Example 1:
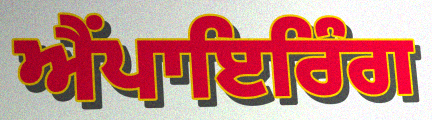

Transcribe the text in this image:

ਐਂਪਾਇਰਿੰਗ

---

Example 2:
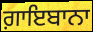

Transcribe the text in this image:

ਗ਼ਾਇਬਾਨਾ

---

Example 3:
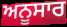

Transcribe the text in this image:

ਅਨੂਸਾਰ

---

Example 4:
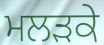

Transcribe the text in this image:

ਮਲੜਕੇ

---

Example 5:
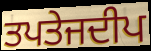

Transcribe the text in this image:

ਤਪਤੇਜਦੀਪ